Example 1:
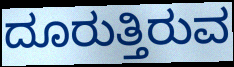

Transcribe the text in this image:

ದೂರುತ್ತಿರುವ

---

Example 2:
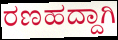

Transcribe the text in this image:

ರಣಹದ್ದಾಗಿ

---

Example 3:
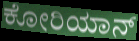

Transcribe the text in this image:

ಕೋರಿಯಾನ್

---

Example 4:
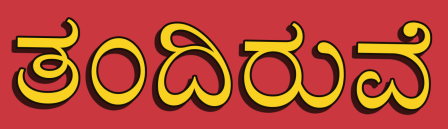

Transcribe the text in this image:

ತಂದಿರುವೆ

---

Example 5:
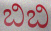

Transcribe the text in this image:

ಬಿಬಿ